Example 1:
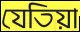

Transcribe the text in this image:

যেতিয়া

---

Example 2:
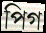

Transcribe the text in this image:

পিগ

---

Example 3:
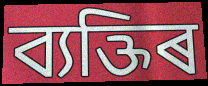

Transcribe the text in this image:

ব্যক্তিৰ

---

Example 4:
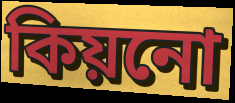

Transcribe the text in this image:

কিয়নো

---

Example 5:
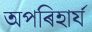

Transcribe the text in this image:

অপৰিহাৰ্য